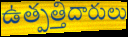
ఉత్పత్తిదారులు